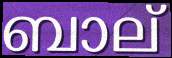
ബാല്